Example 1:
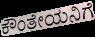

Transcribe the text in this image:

ಕೌಂತೇಯನಿಗೆ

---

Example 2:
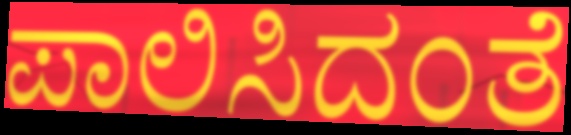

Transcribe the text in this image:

ಪಾಲಿಸಿದಂತೆ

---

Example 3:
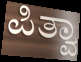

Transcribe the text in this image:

ಪಿತ್ವಾ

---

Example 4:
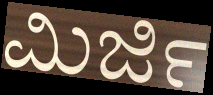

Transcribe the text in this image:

ಮಿರ್ಜಿ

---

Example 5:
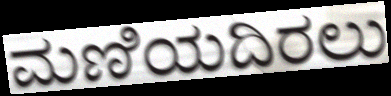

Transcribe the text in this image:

ಮಣಿಯದಿರಲು